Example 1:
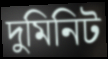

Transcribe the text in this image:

দুমিনিট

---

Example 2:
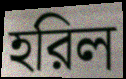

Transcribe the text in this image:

হরিল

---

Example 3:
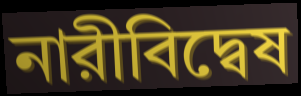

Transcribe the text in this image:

নারীবিদ্বেষ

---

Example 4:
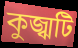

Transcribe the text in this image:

কুজ্ঝটি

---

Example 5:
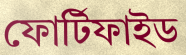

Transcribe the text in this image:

ফোর্টিফাইড